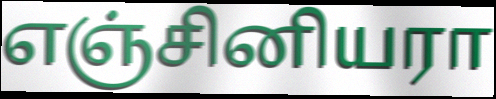
எஞ்சினியரா